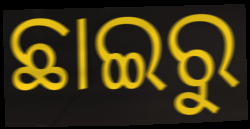
ଛାଇରୁ